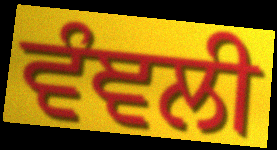
ਵੰਞਲੀ